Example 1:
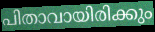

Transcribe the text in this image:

പിതാവായിരിക്കും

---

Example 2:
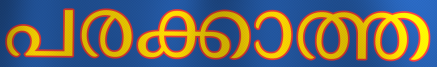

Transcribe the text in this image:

പരക്കാത്ത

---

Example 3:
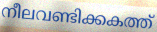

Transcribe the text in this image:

നീലവണ്ടിക്കകത്ത്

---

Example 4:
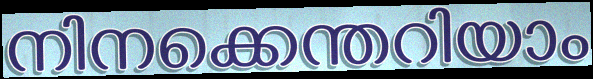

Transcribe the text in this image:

നിനക്കെന്തറിയാം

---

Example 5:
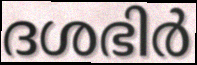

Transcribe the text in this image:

ദശഭിർ